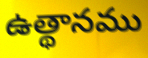
ఉత్థానము